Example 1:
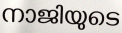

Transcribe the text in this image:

നാജിയുടെ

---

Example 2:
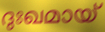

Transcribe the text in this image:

ദുഃഖമായ്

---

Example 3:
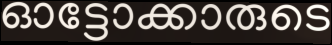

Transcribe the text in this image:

ഓട്ടോക്കാരുടെ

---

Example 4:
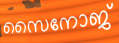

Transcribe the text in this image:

സൈനോജ്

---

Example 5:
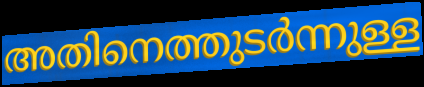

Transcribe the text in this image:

അതിനെത്തുടർന്നുള്ള